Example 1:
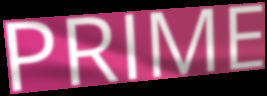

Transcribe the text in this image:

PRIME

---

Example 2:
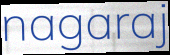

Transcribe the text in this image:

nagaraj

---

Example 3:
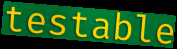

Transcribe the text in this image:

testable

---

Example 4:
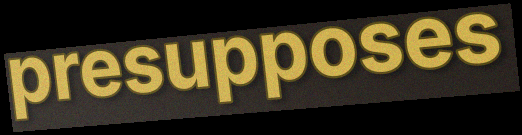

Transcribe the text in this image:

presupposes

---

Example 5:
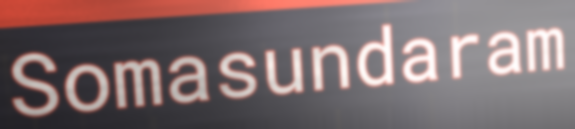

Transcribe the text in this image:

Somasundaram